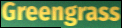
Greengrass